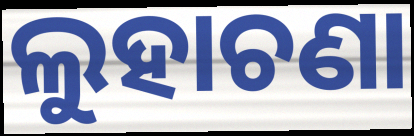
ଲୁହାଚଣା